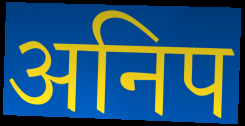
अनिप